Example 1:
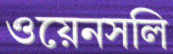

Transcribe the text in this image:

ওয়েনসলি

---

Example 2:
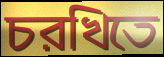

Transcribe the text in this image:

চরখিতে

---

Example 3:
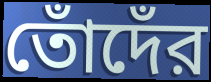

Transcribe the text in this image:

তোঁদেঁর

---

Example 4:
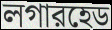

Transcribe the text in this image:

লগারহেড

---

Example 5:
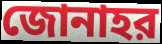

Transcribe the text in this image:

জোনাহর